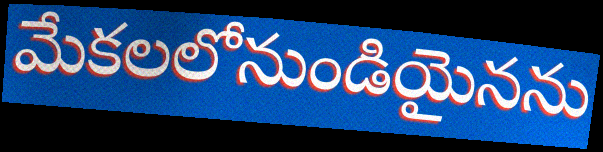
మేకలలోనుండియైనను